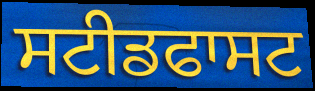
ਸਟੀਡਫਾਸਟ